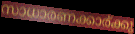
സാധാരണക്കാര്ക്കു